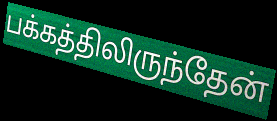
பக்கத்திலிருந்தேன்